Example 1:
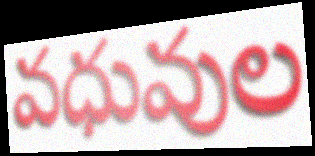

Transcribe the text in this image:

వధువుల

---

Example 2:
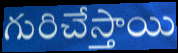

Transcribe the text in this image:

గురిచేస్తాయి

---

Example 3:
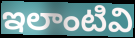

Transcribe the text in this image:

ఇలాంటివి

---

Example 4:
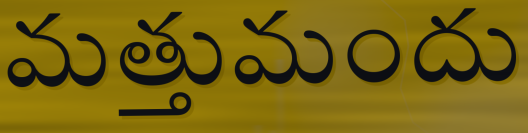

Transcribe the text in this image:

మత్తుమందు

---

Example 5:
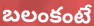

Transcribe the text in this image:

బలంకంటే